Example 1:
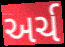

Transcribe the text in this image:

અર્ચ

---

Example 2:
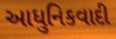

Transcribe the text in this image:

આધુનિકવાદી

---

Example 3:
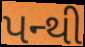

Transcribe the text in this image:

પન્થી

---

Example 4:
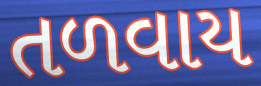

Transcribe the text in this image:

તળવાય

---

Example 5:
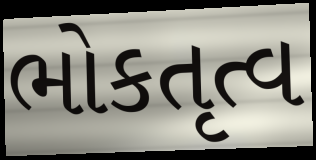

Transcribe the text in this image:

ભોકતૃત્વ